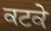
ਕਟਕੇ